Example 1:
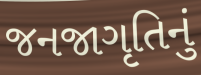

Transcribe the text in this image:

જનજાગૃતિનું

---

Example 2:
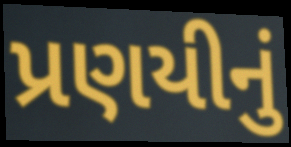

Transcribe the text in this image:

પ્રણયીનું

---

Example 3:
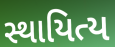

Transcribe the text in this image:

સ્થાયિત્ય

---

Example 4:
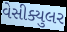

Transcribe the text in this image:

વેસીક્યુલર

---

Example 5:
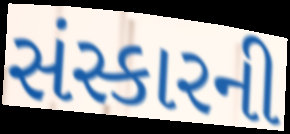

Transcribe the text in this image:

સંસ્કારની